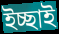
ইচ্ছাই